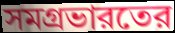
সমগ্রভারতের